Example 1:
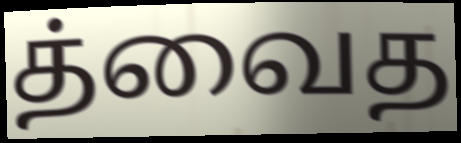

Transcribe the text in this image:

த்வைத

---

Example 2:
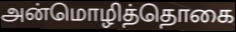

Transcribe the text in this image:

அன்மொழித்தொகை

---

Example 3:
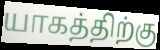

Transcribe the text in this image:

யாகத்திற்கு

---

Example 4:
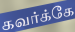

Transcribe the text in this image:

கவர்க்கே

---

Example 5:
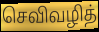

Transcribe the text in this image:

செவிவழித்